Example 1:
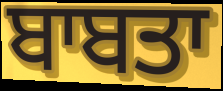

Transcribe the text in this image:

ਬਾਬਤਾ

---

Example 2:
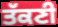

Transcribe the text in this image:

ਤੱਕਣੀ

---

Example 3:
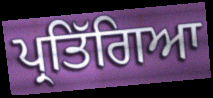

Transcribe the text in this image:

ਪ੍ਰਤਿੱਗਿਆ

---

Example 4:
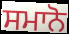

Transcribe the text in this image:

ਸਮਾਨੋ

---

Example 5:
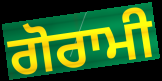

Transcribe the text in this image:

ਗੋਰਾਮੀ